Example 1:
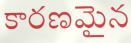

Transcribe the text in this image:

కారణమైన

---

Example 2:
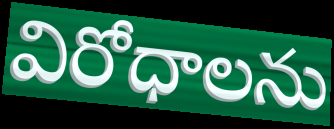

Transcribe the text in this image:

విరోధాలను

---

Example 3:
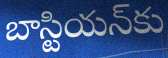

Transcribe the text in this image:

బాస్టియన్‌కు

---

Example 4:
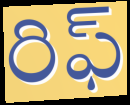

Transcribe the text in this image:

రిఫ్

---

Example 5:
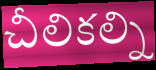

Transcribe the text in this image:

చీలికల్ని